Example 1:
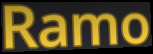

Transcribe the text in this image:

Ramo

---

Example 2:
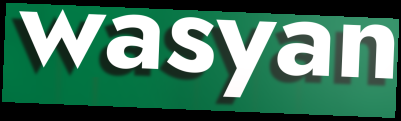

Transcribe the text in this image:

wasyan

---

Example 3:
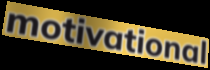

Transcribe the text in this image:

motivational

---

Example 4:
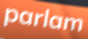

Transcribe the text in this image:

parlam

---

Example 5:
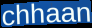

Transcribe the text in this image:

chhaan